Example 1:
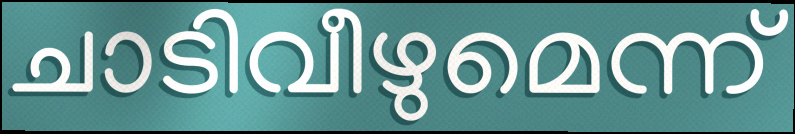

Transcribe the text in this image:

ചാടിവീഴുമെന്ന്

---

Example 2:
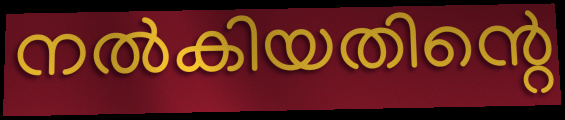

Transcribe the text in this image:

നൽകിയതിന്റെ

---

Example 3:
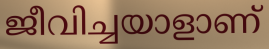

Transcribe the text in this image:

ജീവിച്ചയാളാണ്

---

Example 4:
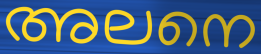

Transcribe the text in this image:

അലനെ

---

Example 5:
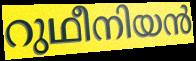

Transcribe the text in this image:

റുഥീനിയൻ